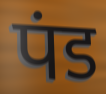
पंड